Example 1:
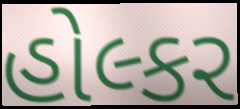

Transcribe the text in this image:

હોલ્કર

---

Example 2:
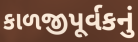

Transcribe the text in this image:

કાળજીપૂર્વકનું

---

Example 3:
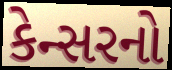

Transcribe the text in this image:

કેન્સરનો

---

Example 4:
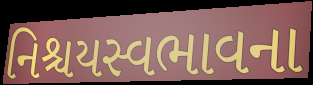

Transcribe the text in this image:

નિશ્ચયસ્વભાવના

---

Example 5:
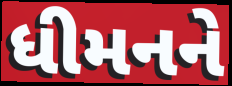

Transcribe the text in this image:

ધીમનને